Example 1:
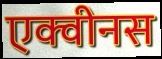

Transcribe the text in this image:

एक्वीनस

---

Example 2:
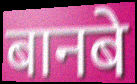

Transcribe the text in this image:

बानबे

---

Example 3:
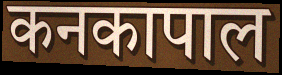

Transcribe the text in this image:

कनकापाल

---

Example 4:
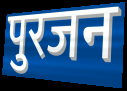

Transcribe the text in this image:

पुरजन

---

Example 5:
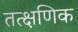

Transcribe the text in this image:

तत्क्षणिक